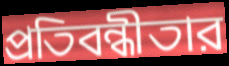
প্রতিবন্ধীতার